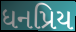
ધનપ્રિય